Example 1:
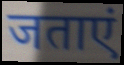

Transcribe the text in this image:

जताएं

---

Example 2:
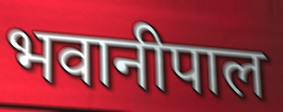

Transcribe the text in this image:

भवानीपाल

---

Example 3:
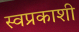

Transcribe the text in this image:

स्वप्रकाशी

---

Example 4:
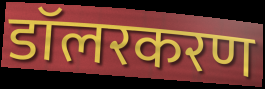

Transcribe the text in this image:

डॉलरकरण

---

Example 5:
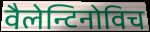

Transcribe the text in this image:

वैलेन्टिनोविच